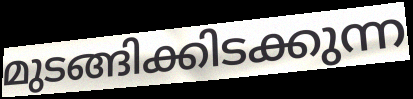
മുടങ്ങിക്കിടക്കുന്ന